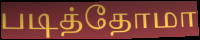
படித்தோமா